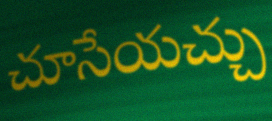
చూసేయచ్చు